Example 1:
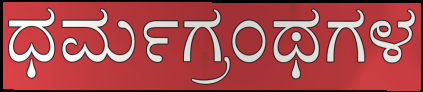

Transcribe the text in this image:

ಧರ್ಮಗ್ರಂಥಗಳ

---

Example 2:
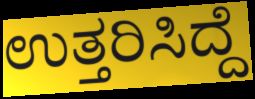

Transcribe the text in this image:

ಉತ್ತರಿಸಿದ್ದೆ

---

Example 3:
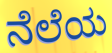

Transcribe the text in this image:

ನೆಲೆಯ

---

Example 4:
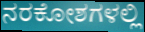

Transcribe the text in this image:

ನರಕೋಶಗಳಲ್ಲಿ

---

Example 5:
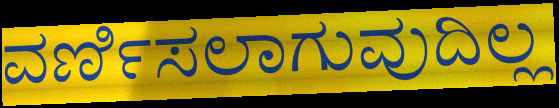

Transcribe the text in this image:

ವರ್ಣಿಸಲಾಗುವುದಿಲ್ಲ